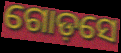
ଗୋଡ଼ସେ